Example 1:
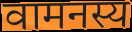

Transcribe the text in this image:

वामनस्य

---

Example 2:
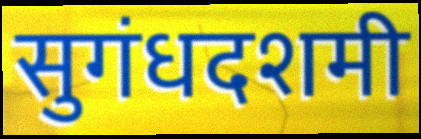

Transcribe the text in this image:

सुगंधदशमी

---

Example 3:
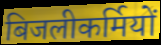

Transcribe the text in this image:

बिजलीकर्मियों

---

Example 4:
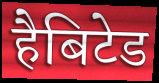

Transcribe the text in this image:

हैबिटेड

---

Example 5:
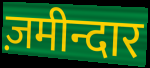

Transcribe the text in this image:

ज़मीन्दार